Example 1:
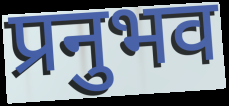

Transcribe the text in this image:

प्रनुभव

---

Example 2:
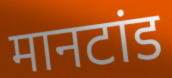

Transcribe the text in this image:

मानटांड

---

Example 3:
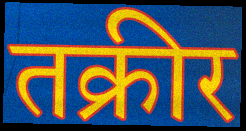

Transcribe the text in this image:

तक्रीर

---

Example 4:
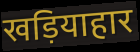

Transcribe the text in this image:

खड़ियाहार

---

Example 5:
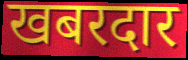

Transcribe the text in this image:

खबरदार